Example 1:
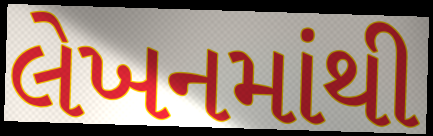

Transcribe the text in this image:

લેખનમાંથી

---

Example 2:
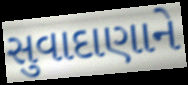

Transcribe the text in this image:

સુવાદાણાને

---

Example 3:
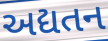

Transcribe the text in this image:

અદ્યતન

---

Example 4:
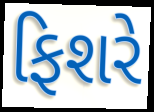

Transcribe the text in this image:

ફિશરે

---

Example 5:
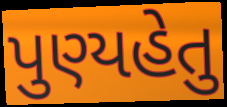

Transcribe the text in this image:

પુણ્યહેતુ